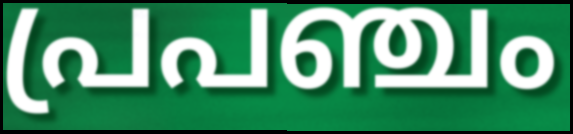
പ്രപഞ്ചം